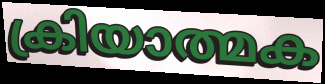
ക്രിയാത്മക